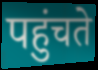
पहुंचते